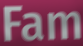
Fam